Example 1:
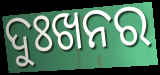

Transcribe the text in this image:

ଦୁଃଖନର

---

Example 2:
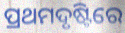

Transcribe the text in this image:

ପ୍ରଥମଦୃଷ୍ଟିରେ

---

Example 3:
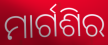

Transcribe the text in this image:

ମାର୍ଗଶିର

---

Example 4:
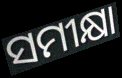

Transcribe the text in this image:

ସମୀକ୍ଷା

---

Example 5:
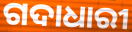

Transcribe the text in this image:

ଗଦାଧାରୀ